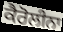
ਕੈਰੋਲੀਨਾ